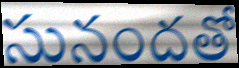
సునందతో